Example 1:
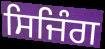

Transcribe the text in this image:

ਸਿਜਿੰਗ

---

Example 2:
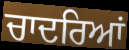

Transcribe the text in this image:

ਚਾਦਰਿਆਂ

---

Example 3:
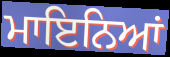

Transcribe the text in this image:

ਮਾਇਨਿਆਂ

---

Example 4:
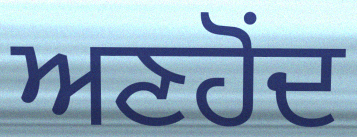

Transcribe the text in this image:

ਅਣਹੋਂਦ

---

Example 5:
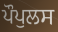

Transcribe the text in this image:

ਪੌਪੁਲਸ